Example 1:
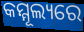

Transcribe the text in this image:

କମ୍ମୂଲ୍ୟରେ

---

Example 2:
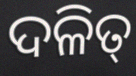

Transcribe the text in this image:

ଦଳିତ୍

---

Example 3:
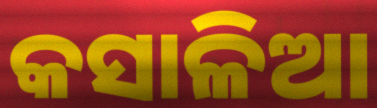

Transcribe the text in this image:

କସାଳିଆ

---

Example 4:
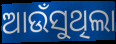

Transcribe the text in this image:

ଆଉଁସୁଥିଲା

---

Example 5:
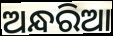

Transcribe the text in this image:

ଅନ୍ଧରିଆ